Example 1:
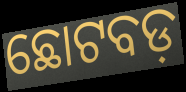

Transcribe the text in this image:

ଛୋଟବଡ଼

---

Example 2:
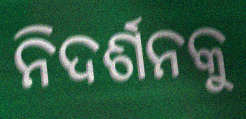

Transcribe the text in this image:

ନିଦର୍ଶନକୁ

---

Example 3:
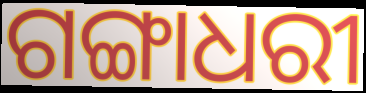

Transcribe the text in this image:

ଗଙ୍ଗାଧରୀ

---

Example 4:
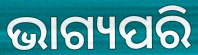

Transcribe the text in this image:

ଭାଗ୍ୟପରି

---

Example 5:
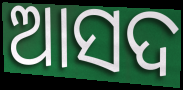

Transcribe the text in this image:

ଆସଦ